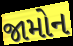
જામોન